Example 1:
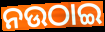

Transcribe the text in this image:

ନଉଠାଇ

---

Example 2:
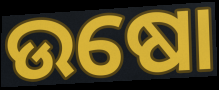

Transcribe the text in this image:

ଉଷୋ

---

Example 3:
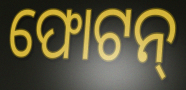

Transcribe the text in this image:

ଫୋଟନ୍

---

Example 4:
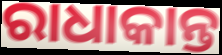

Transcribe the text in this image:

ରାଧାକାନ୍ତ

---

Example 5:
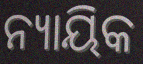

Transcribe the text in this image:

ନ୍ୟାୟିକ